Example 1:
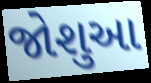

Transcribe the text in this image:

જોશુઆ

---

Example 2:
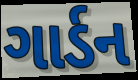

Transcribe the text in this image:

ગાર્ડન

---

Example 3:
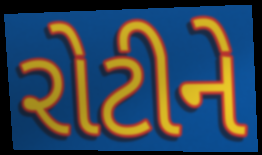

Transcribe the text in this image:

રોટીને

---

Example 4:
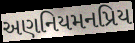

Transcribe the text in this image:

અણનિયમનપ્રિય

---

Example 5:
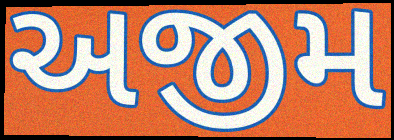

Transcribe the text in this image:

અજીમ